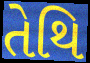
તેથિ